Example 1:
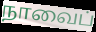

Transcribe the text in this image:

நாவைப்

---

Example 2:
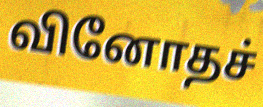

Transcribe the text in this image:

வினோதச்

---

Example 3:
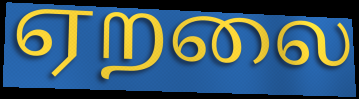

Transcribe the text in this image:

ஏறலை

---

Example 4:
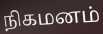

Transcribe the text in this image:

நிகமனம்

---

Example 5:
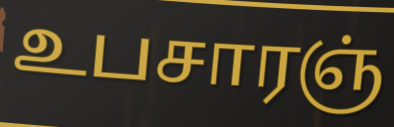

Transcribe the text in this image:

உபசாரஞ்